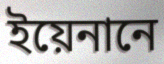
ইয়েনানে